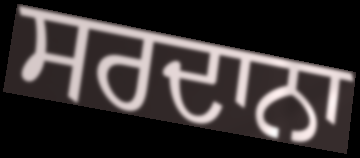
ਸਰਦਾਨਾ